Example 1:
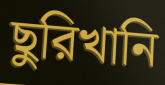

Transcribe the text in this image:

ছুরিখানি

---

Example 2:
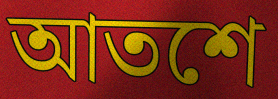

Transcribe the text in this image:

আতশে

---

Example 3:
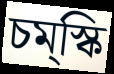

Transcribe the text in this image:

চম্‌স্কি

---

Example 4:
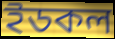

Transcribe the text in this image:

ইডকল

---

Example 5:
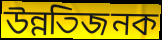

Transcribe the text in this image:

উন্নতিজনক